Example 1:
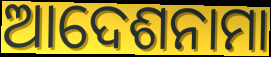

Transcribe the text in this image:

ଆଦେଶନାମା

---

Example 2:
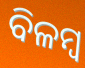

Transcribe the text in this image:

ବିଳମ୍ଵ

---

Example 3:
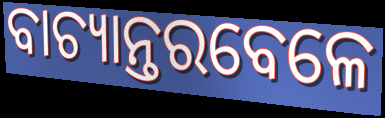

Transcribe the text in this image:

ବାଚ୍ୟାନ୍ତରବେଳେ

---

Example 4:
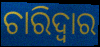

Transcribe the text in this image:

ଚାରିଦ୍ୱାର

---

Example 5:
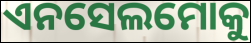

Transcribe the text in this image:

ଏନସେଲମୋକୁ